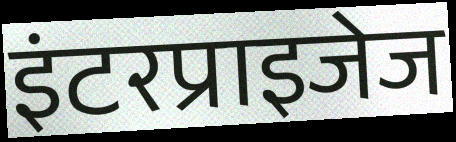
इंटरप्राइजेज